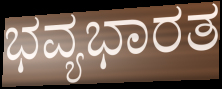
ಭವ್ಯಭಾರತ